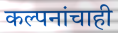
कल्पनांचाही